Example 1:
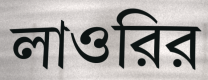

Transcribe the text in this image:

লাওরির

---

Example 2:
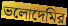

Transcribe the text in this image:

ভলোদেমির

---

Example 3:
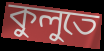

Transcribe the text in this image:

কুলুতে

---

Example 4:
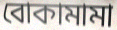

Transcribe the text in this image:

বোকামামা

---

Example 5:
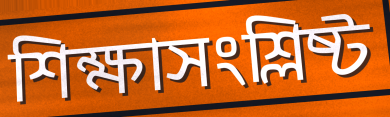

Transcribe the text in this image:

শিক্ষাসংশ্লিষ্ট